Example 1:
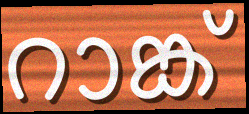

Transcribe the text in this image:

റാങ്ക്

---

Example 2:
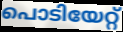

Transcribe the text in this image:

പൊടിയേറ്റ്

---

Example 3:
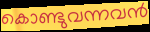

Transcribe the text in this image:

കൊണ്ടുവന്നവൻ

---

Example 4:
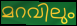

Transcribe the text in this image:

മറവിലും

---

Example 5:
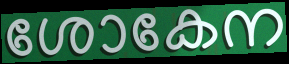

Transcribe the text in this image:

ശോകേന